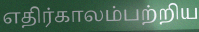
எதிர்காலம்பற்றிய